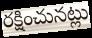
రక్షించునట్లు